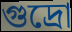
গুদ্ৰো